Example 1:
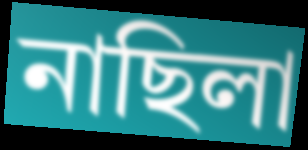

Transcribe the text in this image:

নাছিলা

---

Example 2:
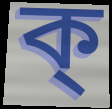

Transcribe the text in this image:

ক্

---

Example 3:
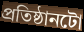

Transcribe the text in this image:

প্ৰতিষ্ঠানটো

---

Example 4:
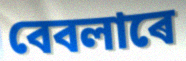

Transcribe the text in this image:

বেবলাৰে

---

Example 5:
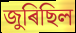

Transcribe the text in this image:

জুৰিছিল